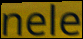
nele